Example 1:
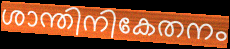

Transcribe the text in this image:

ശാന്തിനികേതനം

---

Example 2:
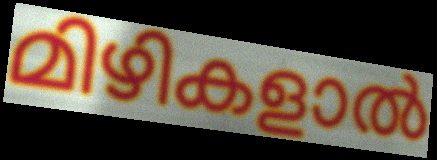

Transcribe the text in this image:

മിഴികളാൽ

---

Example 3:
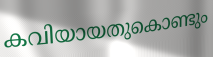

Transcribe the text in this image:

കവിയായതുകൊണ്ടും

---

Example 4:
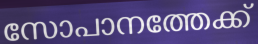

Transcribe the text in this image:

സോപാനത്തേക്ക്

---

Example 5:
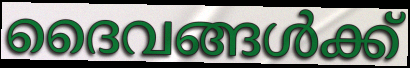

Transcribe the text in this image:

ദൈവങ്ങൾക്ക്